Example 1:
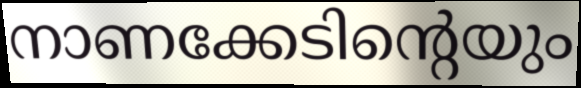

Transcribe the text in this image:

നാണക്കേടിന്റെയും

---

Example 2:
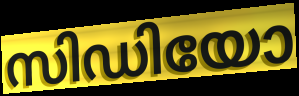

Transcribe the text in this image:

സിഡിയോ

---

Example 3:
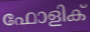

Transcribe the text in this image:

ഫോളിക്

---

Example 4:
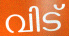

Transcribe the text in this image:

വിട്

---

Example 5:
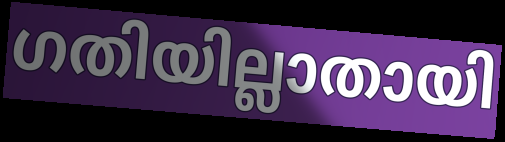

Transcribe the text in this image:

ഗതിയില്ലാതായി